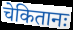
चेकितानः